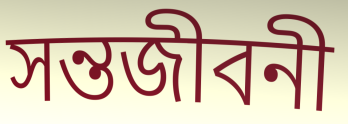
সন্তজীবনী